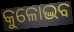
କୁଳୋଦ୍ଭବ